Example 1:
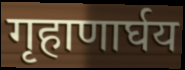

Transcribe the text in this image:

गृहाणार्घय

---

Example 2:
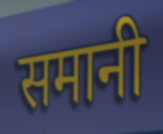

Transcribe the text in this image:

समानी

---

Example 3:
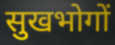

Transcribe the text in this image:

सुखभोगों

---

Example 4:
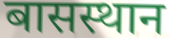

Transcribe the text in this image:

बासस्थान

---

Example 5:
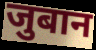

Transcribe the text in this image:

जुबान